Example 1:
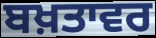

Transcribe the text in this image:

ਬਖ਼ਤਾਵਰ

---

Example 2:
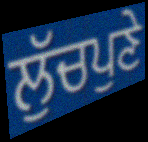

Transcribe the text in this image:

ਲੁੱਚਪੁਣੇ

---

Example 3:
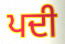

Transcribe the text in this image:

ਪਦੀ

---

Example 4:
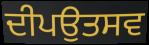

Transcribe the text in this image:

ਦੀਪਉਤਸਵ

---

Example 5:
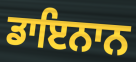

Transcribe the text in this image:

ਡਾਇਨਾਨ